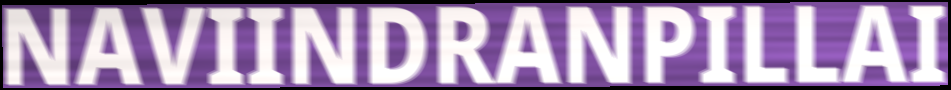
NAVIINDRANPILLAI